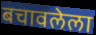
बचावलेला